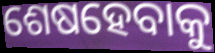
ଶେଷହେବାକୁ